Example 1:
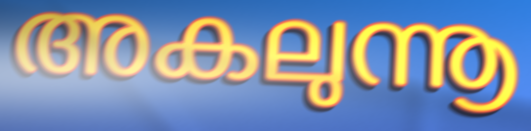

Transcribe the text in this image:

അകലുന്നൂ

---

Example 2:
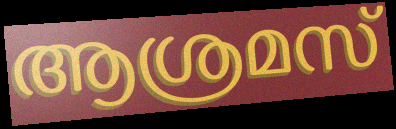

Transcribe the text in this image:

ആശ്രമസ്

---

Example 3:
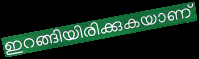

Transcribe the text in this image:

ഇറങ്ങിയിരിക്കുകയാണ്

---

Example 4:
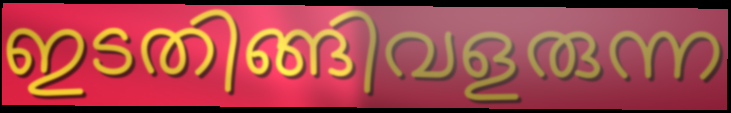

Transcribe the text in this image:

ഇടതിങ്ങിവളരുന്ന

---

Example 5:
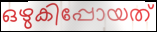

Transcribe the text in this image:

ഒഴുകിപ്പോയത്